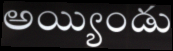
అయ్యిండు